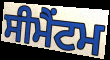
ਸੀਮੈਂਟਮ